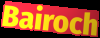
Bairoch